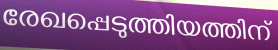
രേഖപ്പെടുത്തിയത്തിന്